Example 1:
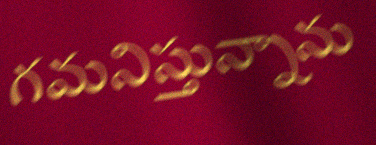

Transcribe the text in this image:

గమనిస్తున్నాను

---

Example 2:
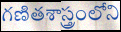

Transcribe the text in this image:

గణితశాస్త్రంలోని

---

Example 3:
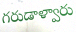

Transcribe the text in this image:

గరుడాళ్వారు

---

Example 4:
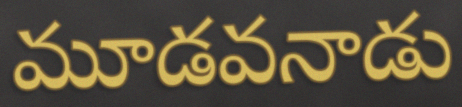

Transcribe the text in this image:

మూడవనాడు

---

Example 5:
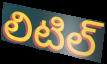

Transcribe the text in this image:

లిటిల్